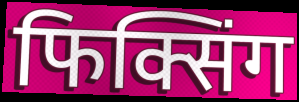
फिक्सिंग